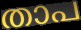
താപ